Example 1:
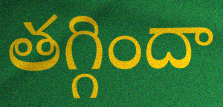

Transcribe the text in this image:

తగ్గిందా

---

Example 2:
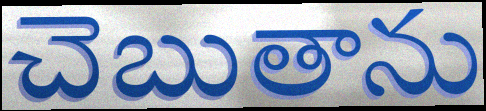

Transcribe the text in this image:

చెబుతాను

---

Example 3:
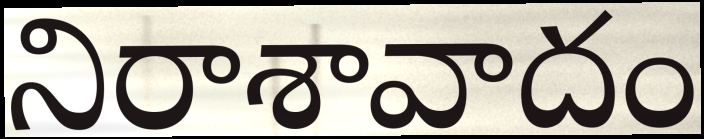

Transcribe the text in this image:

నిరాశావాదం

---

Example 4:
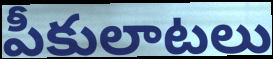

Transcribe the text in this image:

పీకులాటలు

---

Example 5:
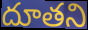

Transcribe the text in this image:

దూతని